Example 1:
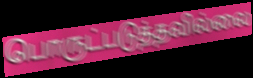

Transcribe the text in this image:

பொருட்படுத்தவில்லை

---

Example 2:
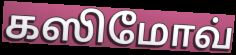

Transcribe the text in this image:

கஸிமோவ்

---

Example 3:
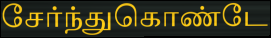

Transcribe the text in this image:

சேர்ந்துகொண்டே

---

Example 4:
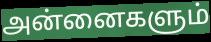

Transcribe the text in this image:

அன்னைகளும்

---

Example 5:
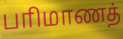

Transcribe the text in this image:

பரிமாணத்